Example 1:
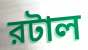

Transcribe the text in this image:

রটাল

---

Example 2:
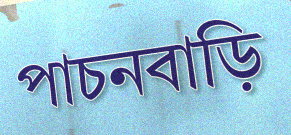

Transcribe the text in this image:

পাচনবাড়ি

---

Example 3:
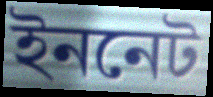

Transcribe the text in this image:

ইননেট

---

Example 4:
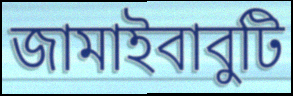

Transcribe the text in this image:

জামাইবাবুটি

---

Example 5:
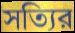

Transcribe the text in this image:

সত্যির